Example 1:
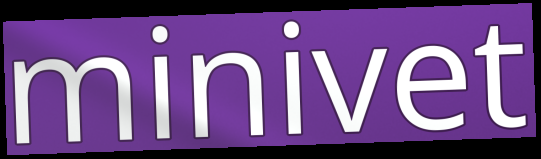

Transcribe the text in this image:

minivet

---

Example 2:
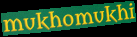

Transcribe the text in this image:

mukhomukhi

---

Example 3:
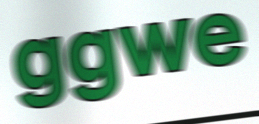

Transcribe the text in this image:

ggwe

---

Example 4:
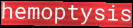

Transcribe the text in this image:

hemoptysis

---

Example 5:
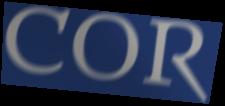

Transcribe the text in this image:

COR